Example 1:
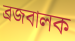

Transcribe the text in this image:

ব্রজবালক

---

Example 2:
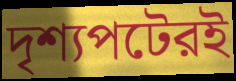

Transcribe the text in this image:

দৃশ্যপটেরই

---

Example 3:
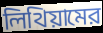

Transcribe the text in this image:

লিথিয়ামের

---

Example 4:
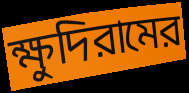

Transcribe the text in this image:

ক্ষুদিরামের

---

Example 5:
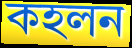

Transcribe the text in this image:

কহলন